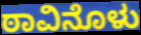
ಠಾವಿನೊಳು